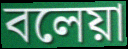
বলেয়া